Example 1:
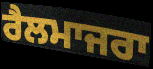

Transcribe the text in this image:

ਰੈਲਮਾਜਰਾ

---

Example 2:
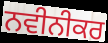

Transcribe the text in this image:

ਨਵੀਨੀਕਰ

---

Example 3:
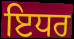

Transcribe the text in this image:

ਇਧਰ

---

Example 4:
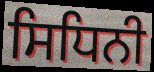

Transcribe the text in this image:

ਸਿਧਿਨੀ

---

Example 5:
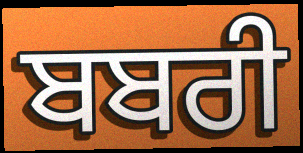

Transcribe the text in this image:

ਬਬਰੀ